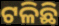
ଟଳିଛି